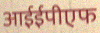
आईईपीएफ